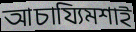
আচায্যিমশাই